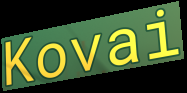
Kovai